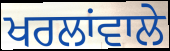
ਖਰਲਾਂਵਾਲੇ